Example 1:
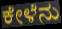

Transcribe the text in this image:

ಕೇಳೆನು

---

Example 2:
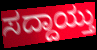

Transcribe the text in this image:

ಸದ್ದಾಯ್ತು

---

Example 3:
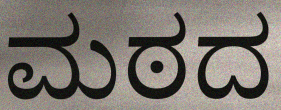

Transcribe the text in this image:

ಮಠದ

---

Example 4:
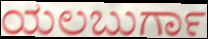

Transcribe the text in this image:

ಯಲಬುರ್ಗಾ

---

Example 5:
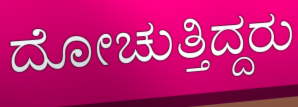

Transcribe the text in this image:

ದೋಚುತ್ತಿದ್ದರು